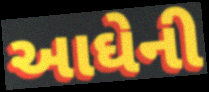
આઘેની